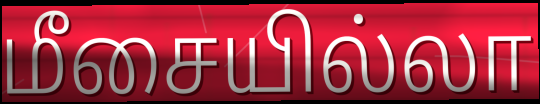
மீசையில்லா